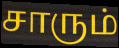
சாரும்